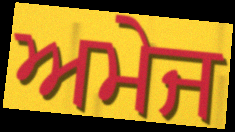
ਅਮੇਜ